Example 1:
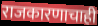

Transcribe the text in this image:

राजकारणाचाही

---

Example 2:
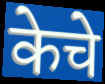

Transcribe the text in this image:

केचे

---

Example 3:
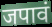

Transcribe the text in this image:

जपावं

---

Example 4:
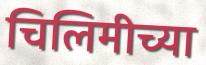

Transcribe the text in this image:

चिलिमीच्या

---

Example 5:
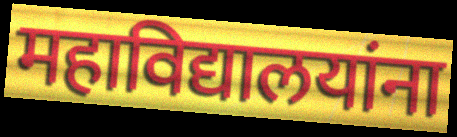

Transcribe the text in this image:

महाविद्यालयांना